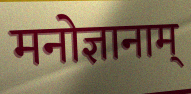
मनोज्ञानाम्